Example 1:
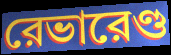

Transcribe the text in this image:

রেভারেণ্ড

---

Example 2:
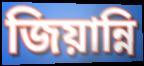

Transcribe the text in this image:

জিয়ান্নি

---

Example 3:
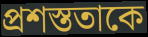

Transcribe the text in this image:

প্রশস্ততাকে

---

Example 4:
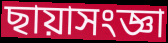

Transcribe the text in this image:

ছায়াসংজ্ঞা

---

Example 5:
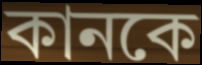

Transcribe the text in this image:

কানকে